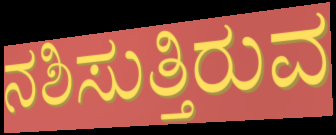
ನಶಿಸುತ್ತಿರುವ